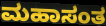
ಮಹಾಸಂತ